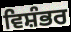
ਵਿਸ਼ੰਭਰ